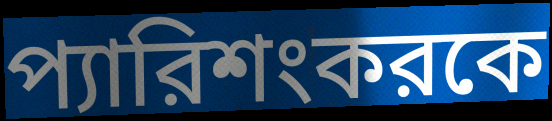
প্যারিশংকরকে